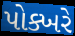
પોક્ખરે